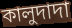
কালুদাদা